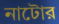
নাটোর